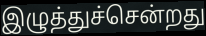
இழுத்துச்சென்றது